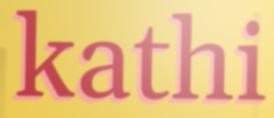
kathi